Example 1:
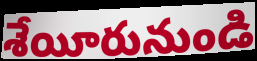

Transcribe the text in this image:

శేయీరునుండి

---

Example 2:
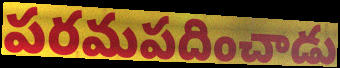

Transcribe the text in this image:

పరమపదించాడు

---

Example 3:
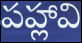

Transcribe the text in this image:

పహ్లావి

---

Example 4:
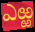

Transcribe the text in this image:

ఎఱ్ఱ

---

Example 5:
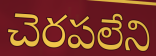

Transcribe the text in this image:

చెరపలేని